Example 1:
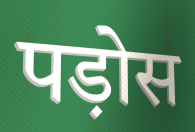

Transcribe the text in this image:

पड़ोस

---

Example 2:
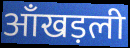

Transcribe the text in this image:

आँखड़ली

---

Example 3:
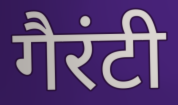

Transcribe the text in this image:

गैरंटी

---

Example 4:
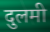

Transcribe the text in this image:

दुलमी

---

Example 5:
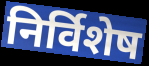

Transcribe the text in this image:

निर्विशेष